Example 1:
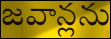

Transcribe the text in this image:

జవాన్లను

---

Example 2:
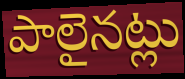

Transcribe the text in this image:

పాలైనట్లు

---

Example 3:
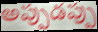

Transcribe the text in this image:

అప్పుడప్పు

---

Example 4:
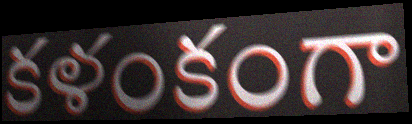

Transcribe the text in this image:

కళంకంగా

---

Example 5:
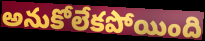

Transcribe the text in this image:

అనుకోలేకపోయింది